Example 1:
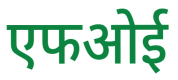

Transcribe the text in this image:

एफओई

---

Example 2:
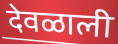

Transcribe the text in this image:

देवळाली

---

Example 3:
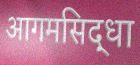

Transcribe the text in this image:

आगमसिद्धा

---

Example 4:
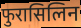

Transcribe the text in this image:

फुरासिलिन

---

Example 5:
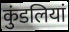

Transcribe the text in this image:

कुंडलियां